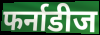
फर्नाडीज